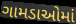
ગામડાઓમાં